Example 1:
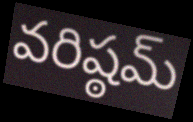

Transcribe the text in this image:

వరిష్ఠమ్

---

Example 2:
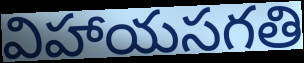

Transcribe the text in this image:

విహాయసగతి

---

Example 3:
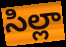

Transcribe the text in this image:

సిల్లా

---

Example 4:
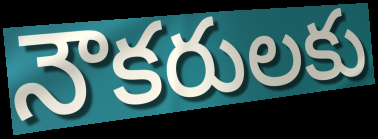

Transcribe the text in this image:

నౌకరులకు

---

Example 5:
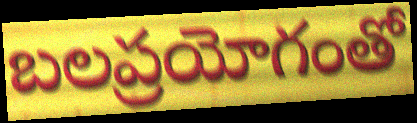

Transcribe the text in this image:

బలప్రయోగంతో